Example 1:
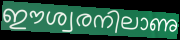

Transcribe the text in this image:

ഈശ്വരനിലാണു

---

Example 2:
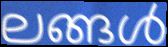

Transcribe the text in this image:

ലങ്ങൾ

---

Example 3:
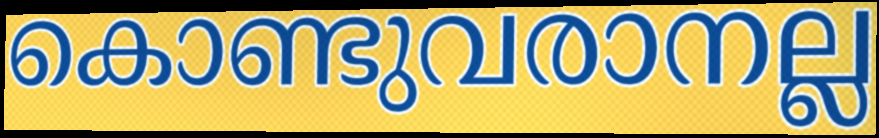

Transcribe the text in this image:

കൊണ്ടുവരാനല്ല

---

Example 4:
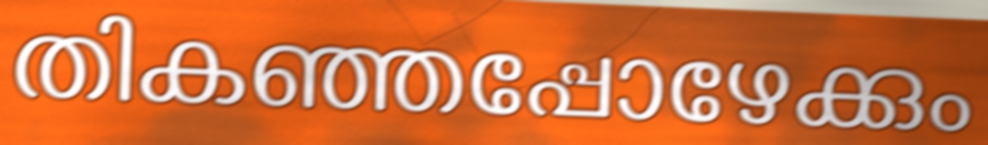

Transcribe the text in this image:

തികഞ്ഞപ്പോഴേക്കും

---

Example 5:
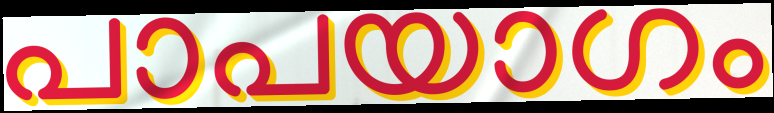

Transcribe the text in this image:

പാപയാഗം